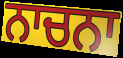
ਨਾਚਨਾ